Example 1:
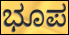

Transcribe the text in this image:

ಭೂಪ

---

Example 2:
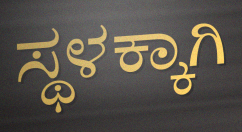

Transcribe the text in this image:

ಸ್ಥಳಕ್ಕಾಗಿ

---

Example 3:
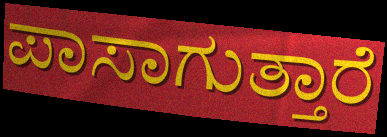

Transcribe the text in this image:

ಪಾಸಾಗುತ್ತಾರೆ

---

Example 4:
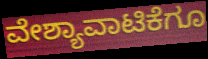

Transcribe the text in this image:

ವೇಶ್ಯಾವಾಟಿಕೆಗೂ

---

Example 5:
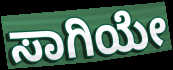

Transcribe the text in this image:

ಸಾಗಿಯೇ